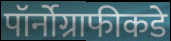
पॉर्नोग्राफीकडे